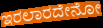
ಇರಲಾರದೇನೋ